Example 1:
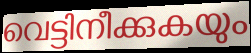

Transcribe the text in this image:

വെട്ടിനീക്കുകയും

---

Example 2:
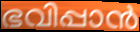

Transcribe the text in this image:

ഭവിപ്പാൻ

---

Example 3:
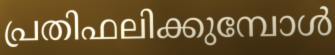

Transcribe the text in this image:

പ്രതിഫലിക്കുമ്പോൾ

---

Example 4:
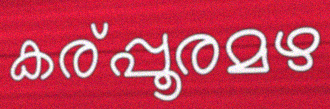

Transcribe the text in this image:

കര്പ്പൂരമഴ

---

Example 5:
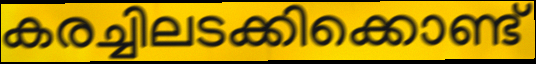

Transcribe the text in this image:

കരച്ചിലടക്കിക്കൊണ്ട്